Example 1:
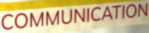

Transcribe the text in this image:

COMMUNICATION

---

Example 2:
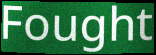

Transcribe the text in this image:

Fought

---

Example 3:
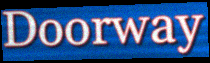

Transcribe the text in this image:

Doorway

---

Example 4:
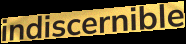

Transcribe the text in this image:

indiscernible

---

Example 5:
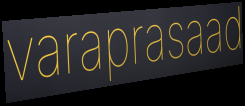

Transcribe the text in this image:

varaprasaad